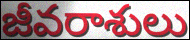
జీవరాశులు